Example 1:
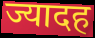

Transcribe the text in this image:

ज्यादह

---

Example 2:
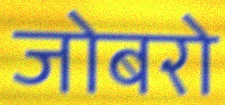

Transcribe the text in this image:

जोबरो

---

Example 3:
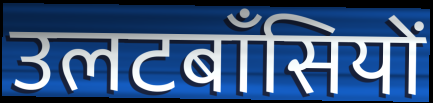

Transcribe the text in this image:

उलटबाँसियों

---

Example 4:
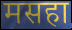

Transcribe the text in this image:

मसहा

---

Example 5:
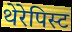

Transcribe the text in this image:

थेरेपिस्‍ट